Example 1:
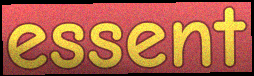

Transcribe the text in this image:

essent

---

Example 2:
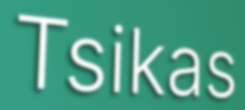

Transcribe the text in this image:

Tsikas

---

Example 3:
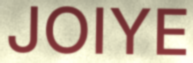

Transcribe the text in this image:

JOIYE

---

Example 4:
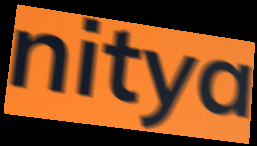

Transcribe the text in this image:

nitya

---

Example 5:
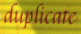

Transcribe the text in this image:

duplicate